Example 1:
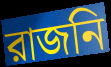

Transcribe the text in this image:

রাজনি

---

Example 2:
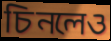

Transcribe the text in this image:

চিনলেও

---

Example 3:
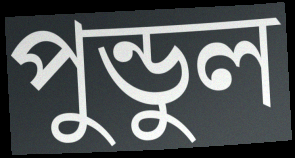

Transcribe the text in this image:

পুন্ডুল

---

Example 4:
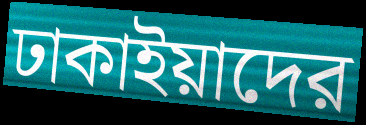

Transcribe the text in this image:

ঢাকাইয়াদের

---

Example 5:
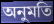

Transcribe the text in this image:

অনুমতি